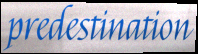
predestination